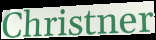
Christner